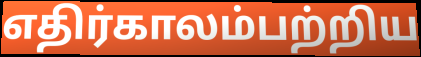
எதிர்காலம்பற்றிய